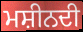
ਮਸ਼ੀਨਦੀ